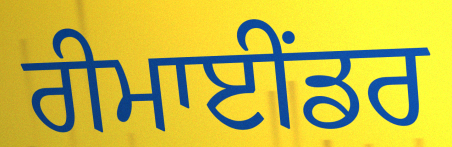
ਰੀਮਾਈਂਡਰ